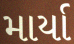
માર્યા